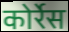
कोर्रेस